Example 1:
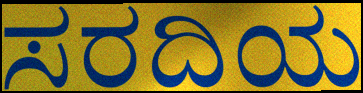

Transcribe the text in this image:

ಸರದಿಯ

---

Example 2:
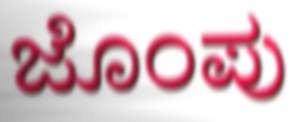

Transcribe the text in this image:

ಜೊಂಪು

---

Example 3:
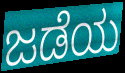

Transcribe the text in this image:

ಜಡೆಯ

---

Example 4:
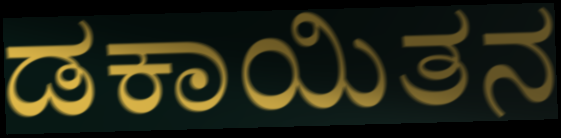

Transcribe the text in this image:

ಡಕಾಯಿತನ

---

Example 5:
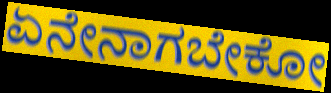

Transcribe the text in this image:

ಏನೇನಾಗಬೇಕೋ